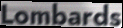
Lombards